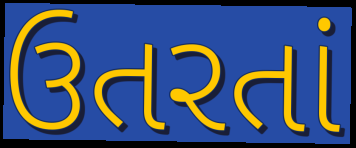
ઉતરતાં